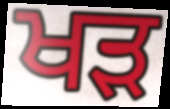
ਖੜ